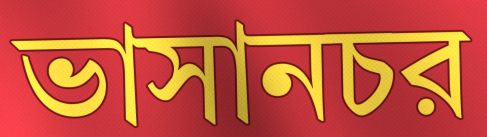
ভাসানচর